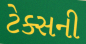
ટેક્સની